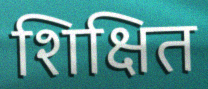
शिक्षित